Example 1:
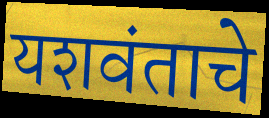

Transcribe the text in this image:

यशवंताचे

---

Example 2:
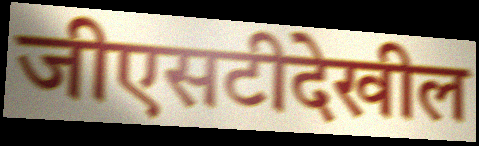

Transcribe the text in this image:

जीएसटीदेखील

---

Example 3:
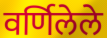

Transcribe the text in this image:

वर्णिलेले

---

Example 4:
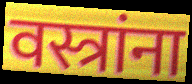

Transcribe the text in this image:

वस्त्रांना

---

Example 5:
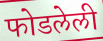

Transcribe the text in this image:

फोडलेली